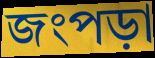
জংপড়া